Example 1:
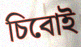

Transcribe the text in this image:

চিবোই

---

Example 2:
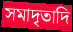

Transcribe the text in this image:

সমাদৃতাদি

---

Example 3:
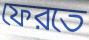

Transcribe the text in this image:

ফেরতে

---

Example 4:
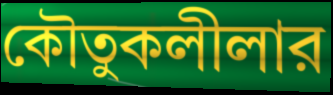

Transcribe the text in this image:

কৌতুকলীলার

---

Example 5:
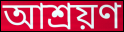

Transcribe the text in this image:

আশ্রয়ণ